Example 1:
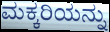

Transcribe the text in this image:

ಮಕ್ಕರಿಯನ್ನು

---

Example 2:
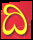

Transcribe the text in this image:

ದಿ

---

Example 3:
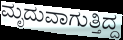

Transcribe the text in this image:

ಮೃದುವಾಗುತ್ತಿದ್ದ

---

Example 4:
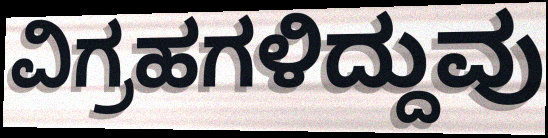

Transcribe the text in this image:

ವಿಗ್ರಹಗಳಿದ್ದುವು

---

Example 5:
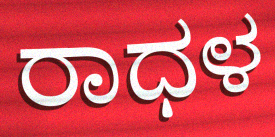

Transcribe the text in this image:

ರಾಧಳ